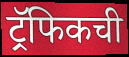
ट्रॅफिकची